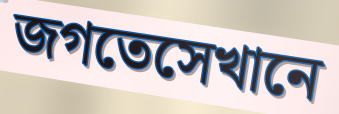
জগতেসেখানে